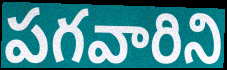
పగవారిని